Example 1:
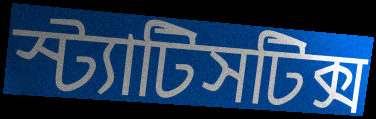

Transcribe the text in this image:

স্ট্যাটিসটিক্স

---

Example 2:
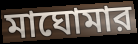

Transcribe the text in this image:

মাঘোমার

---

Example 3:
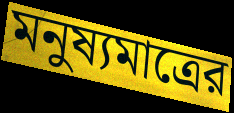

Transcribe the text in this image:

মনুষ্যমাত্রের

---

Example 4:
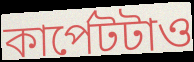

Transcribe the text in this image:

কার্পেটটাও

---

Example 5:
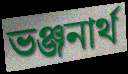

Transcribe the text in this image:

ভঞ্জনার্থ